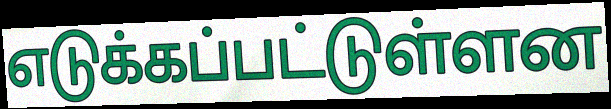
எடுக்கப்பட்டுள்ளன